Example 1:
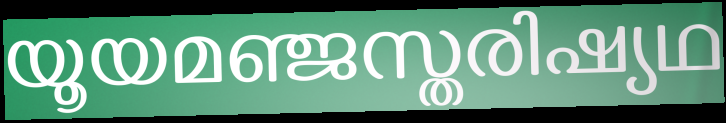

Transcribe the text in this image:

യൂയമഞ്ജസ്തരിഷ്യഥ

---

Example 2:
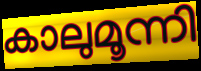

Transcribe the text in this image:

കാലുമൂന്നി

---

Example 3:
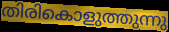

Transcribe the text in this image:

തിരികൊളുത്തുന്നു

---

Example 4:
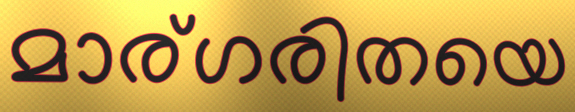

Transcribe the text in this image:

മാര്ഗരിതയെ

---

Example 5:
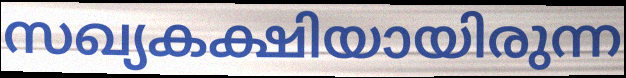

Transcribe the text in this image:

സഖ്യകക്ഷിയായിരുന്ന